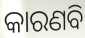
କାରଣବି